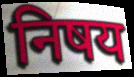
निषय